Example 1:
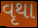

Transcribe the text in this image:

વૃથા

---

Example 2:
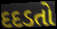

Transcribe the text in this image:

દદડતો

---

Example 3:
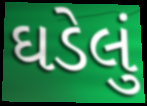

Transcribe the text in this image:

ઘડેલું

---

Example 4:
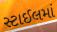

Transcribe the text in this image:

સ્ટાઈલમાં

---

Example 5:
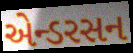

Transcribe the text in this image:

એન્ડરસન